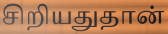
சிறியதுதான்